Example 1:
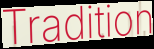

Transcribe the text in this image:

Tradition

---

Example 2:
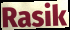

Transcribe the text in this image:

Rasik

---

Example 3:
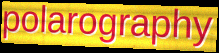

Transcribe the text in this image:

polarography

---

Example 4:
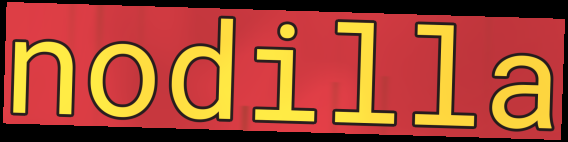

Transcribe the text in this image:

nodilla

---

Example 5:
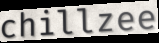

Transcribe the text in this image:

chillzee